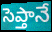
సెప్తానే